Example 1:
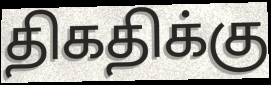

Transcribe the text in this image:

திகதிக்கு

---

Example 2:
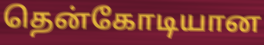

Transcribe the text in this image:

தென்கோடியான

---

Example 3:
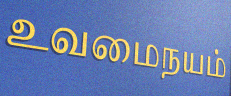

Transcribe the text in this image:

உவமைநயம்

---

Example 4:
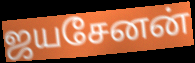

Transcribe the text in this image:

ஜயசேனன்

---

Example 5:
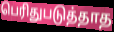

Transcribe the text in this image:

பெரிதுபடுத்தாத